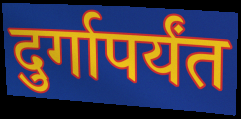
दुर्गापर्यंत